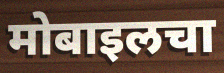
मोबाइलचा